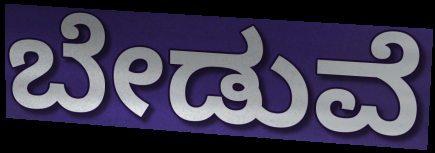
ಬೇಡುವೆ